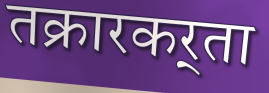
तक्रारकर्ता